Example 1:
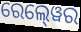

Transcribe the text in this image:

ରେଲ୍‍ୱେର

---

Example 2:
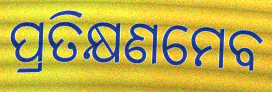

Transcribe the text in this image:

ପ୍ରତିକ୍ଷଣମେବ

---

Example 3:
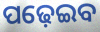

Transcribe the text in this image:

ପଢ଼େଇବ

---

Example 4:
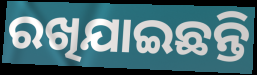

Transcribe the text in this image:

ରଖିଯାଇଛନ୍ତି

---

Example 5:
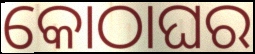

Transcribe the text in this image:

କୋଠାଘର